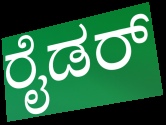
ರೈಡರ್